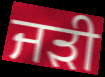
ਜੜੀ